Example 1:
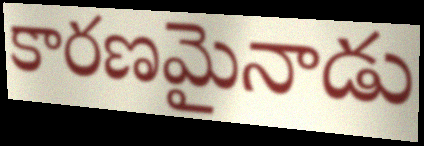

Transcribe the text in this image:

కారణమైనాడు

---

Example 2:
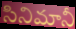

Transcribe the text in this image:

సినిమానీ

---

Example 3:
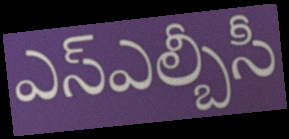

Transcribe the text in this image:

ఎస్ఎల్బీసీ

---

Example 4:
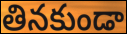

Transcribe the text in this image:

తినకుండా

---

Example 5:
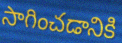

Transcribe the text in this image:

సాగించడానికి